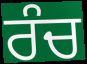
ਰੰਚ